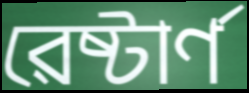
ৱেষ্টাৰ্ণ